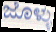
ಜೊಳ್ಳು